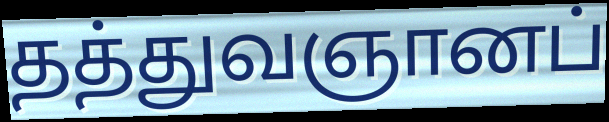
தத்துவஞானப்